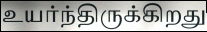
உயர்ந்திருக்கிறது